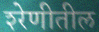
श्रेणीतील